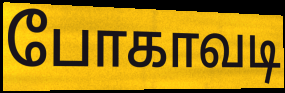
போகாவடி